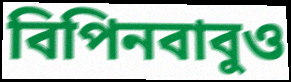
বিপিনবাবুও